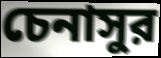
চেনাসুর